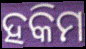
ହକିମ